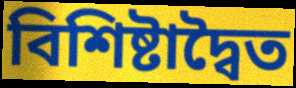
বিশিষ্টাদ্বৈত